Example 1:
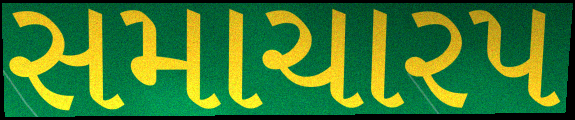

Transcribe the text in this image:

સમાચારપ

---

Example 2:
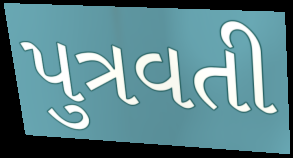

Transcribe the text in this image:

પુત્રવતી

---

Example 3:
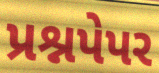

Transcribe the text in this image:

પ્રશ્નપેપર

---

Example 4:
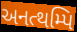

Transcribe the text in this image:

અનત્થમ્પિ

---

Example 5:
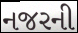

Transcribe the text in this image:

નજરની